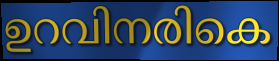
ഉറവിനരികെ